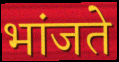
भांजते